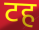
टह